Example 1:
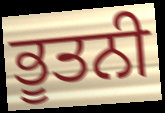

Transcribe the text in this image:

ਭੂਤਨੀ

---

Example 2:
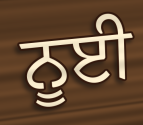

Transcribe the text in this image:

ਨੂਈ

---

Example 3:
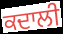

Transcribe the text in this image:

ਕਦਾਲੀ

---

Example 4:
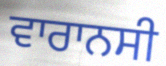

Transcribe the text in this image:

ਵਾਰਾਨਸੀ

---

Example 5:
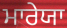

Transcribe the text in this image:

ਮਾਰੇਯਾ